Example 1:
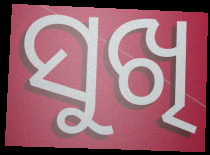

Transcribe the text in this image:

ସୁଖି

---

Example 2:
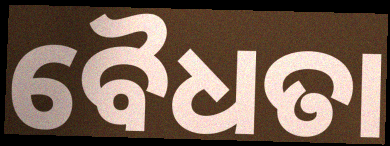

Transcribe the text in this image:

ବୈଧତା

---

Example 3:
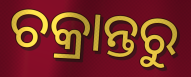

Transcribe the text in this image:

ଚକ୍ରାନ୍ତରୁ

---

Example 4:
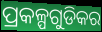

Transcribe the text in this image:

ପ୍ରକଳ୍ପଗୁଡିକର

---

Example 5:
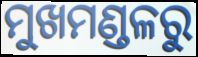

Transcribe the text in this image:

ମୁଖମଣ୍ଡଳରୁ